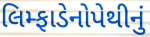
લિમ્ફાડેનોપેથીનું